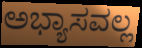
ಅಭ್ಯಾಸವಲ್ಲ